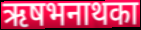
ऋषभनाथका